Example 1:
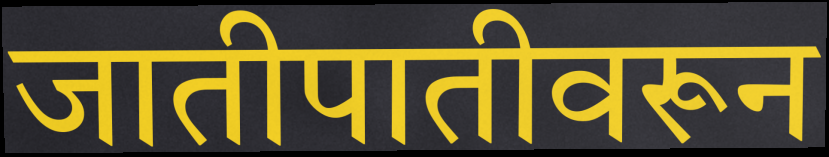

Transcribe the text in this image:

जातीपातीवरून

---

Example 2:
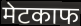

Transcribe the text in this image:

मेटकाफ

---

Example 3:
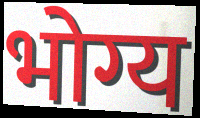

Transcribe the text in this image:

भोग्य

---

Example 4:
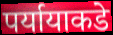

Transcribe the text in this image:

पर्यायाकडे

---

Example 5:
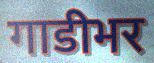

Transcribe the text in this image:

गाडीभर